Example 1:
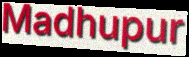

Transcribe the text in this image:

Madhupur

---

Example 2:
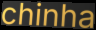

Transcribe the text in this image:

chinha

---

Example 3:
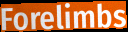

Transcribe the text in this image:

Forelimbs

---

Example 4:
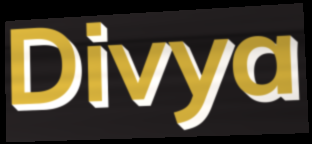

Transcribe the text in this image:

Divya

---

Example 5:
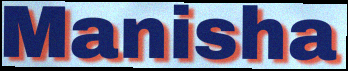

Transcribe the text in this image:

Manisha